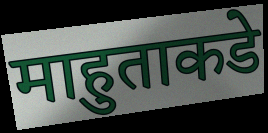
माहुताकडे